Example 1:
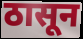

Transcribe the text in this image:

ठासून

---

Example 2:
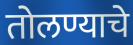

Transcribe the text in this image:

तोलण्याचे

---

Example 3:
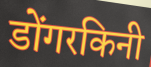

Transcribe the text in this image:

डोंगरकिनी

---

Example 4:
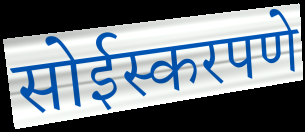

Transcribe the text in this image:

सोईस्करपणे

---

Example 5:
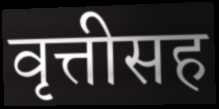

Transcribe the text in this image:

वृत्तीसह